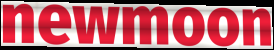
newmoon